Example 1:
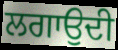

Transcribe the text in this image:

ਲਗਾਉਦੀ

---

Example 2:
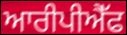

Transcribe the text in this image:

ਆਰੀਪੀਐੱਫ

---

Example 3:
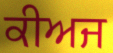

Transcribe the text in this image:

ਕੀਅਜ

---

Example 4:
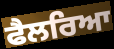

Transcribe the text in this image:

ਫੈਲਰਿਆ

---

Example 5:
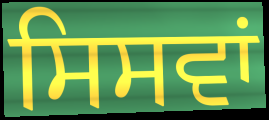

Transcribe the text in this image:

ਸਿਸਵਾਂ